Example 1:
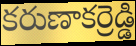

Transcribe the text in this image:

కరుణాకర్రెడ్డి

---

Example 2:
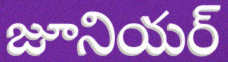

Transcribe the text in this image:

జూనియర్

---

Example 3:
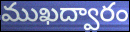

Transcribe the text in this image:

ముఖద్వారం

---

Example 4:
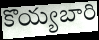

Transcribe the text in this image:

కొయ్యబారి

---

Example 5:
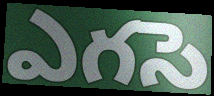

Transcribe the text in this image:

ఎగసె